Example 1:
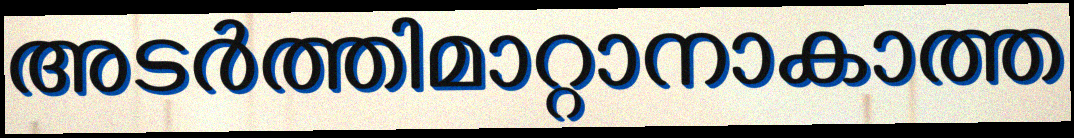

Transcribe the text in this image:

അടർത്തിമാറ്റാനാകാത്ത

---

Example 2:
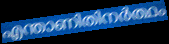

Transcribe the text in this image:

എന്താണിതിനർത്ഥം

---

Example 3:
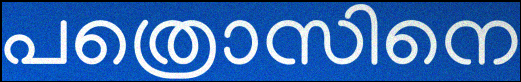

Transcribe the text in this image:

പത്രൊസിനെ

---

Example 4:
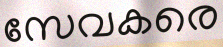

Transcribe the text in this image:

സേവകരെ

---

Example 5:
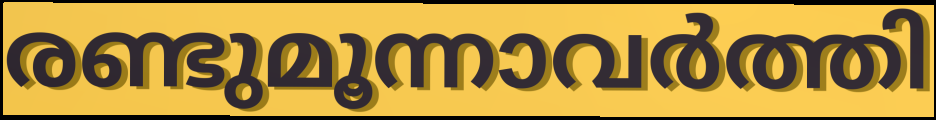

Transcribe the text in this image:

രണ്ടുമൂന്നാവർത്തി